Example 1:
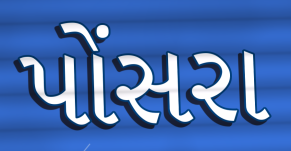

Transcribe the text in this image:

પોંસરા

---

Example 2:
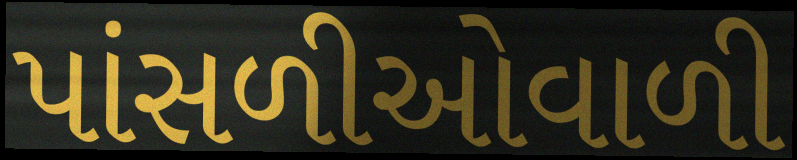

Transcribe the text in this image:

પાંસળીઓવાળી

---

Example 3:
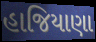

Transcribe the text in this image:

હાજિયાણા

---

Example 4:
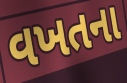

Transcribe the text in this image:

વખતના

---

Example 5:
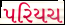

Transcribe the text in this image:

પરિયચ